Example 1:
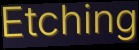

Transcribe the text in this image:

Etching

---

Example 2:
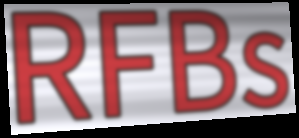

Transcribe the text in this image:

RFBs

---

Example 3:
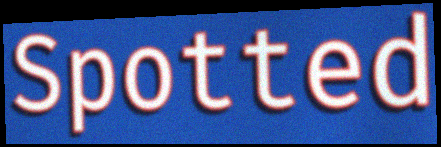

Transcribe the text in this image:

Spotted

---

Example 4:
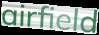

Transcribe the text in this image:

airfield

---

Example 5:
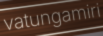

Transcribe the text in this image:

vatungamiri